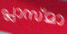
പ്ലാസ്മാ